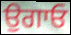
ਉਗਾਓ